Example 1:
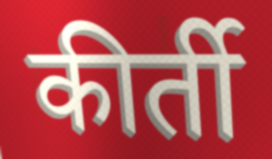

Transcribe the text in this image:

कीर्ती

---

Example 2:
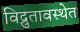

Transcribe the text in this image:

विद्रुतावस्थेत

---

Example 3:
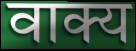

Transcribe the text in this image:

वाक्य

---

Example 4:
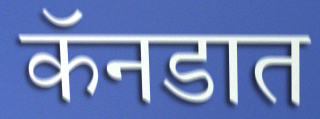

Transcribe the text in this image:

कॅनडात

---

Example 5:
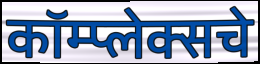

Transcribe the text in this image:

कॉम्प्लेक्सचे